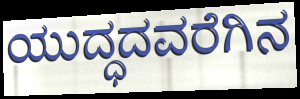
ಯುದ್ಧದವರೆಗಿನ